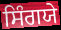
ਸਿੰਗਯੇ